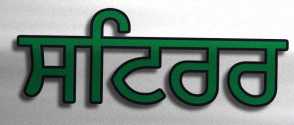
ਸਟਿਰਰ